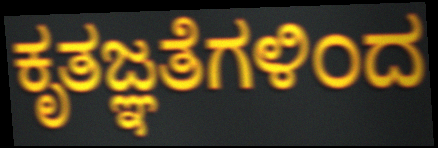
ಕೃತಜ್ಞತೆಗಳಿಂದ